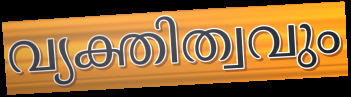
വ്യക്തിത്വവും